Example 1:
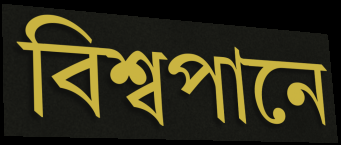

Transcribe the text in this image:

বিশ্বপানে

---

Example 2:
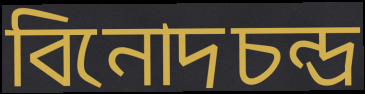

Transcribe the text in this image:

বিনোদচন্দ্র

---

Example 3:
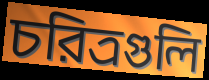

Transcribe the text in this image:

চরিত্রগুলি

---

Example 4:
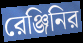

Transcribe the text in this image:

রেঞ্জিনির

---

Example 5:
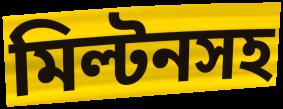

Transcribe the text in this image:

মিল্টনসহ